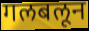
गलबलून